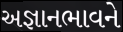
અજ્ઞાનભાવને